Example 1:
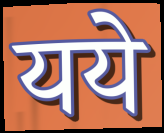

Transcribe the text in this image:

यये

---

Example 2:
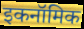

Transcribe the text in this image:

इकनॉमिक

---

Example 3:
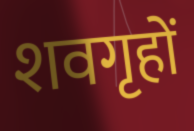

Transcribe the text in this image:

शवगृहों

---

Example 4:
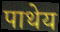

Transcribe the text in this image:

पाथेय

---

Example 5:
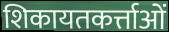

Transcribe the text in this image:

शिकायतकर्त्ताओं